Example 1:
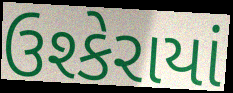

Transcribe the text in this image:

ઉશ્કેરાયાં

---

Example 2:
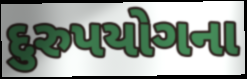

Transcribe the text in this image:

દુરુપયોગના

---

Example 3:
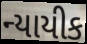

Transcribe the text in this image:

ન્યાયીક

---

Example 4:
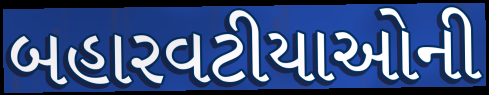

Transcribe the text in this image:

બહારવટીયાઓની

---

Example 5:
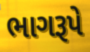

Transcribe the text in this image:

ભાગરૂપે